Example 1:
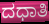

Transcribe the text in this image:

ದಧಾತಿ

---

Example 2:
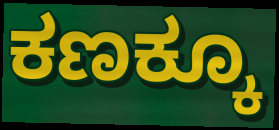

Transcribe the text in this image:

ಕಣಕ್ಕೂ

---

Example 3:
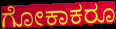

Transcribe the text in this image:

ಗೋಕಾಕರೂ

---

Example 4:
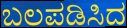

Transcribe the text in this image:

ಬಲಪಡಿಸಿದ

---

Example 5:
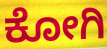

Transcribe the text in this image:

ಕೋಗಿ